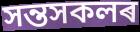
সন্তসকলৰ